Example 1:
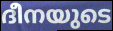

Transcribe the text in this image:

ദീനയുടെ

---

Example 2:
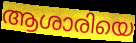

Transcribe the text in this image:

ആശാരിയെ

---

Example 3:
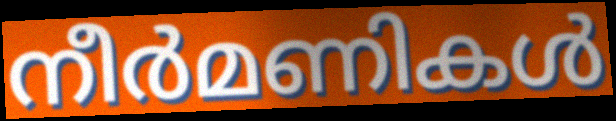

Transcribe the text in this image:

നീർമണികൾ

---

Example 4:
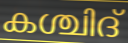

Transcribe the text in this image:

കശ്ചിദ്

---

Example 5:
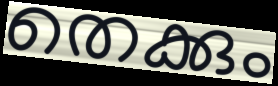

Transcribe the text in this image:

തെക്കും